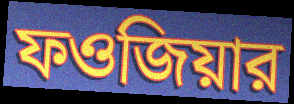
ফওজিয়ার